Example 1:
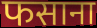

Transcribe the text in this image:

फसाना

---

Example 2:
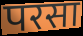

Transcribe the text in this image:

परसा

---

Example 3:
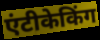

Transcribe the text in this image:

एंटीकेकिंग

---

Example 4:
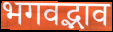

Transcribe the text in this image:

भगवद्भाव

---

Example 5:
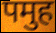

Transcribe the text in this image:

पमुह